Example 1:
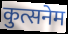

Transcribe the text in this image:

कुत्सनेम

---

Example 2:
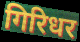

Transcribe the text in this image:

गिरिधर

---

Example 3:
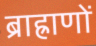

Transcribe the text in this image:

ब्राह्राणों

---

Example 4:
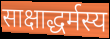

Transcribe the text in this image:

साक्षाद्धर्मस्य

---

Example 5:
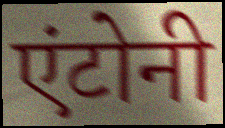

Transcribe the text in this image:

एंटोनी